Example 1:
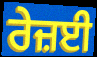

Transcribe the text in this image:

ਰੇਜ਼ਈ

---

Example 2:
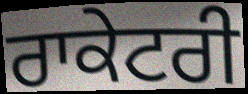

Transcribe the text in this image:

ਰਾਕੇਟਰੀ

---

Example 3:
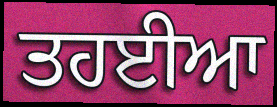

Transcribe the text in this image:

ਤਹਈਆ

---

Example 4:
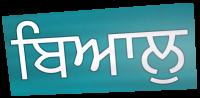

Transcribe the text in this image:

ਬਿਆਲੁ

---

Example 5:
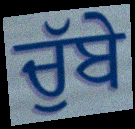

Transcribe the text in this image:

ਚੁੱਬੇ